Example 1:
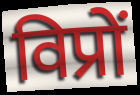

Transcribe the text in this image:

विप्रों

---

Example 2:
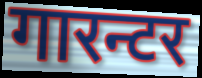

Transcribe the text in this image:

गारन्टर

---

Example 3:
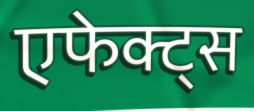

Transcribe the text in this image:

एफेक्ट्स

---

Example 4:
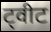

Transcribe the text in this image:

ट्‌वीट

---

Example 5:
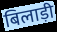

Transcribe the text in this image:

बिलाड़ी